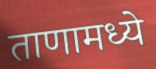
ताणामध्ये